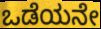
ಒಡೆಯನೇ